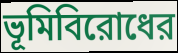
ভূমিবিরোধের